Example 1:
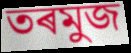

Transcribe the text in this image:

তৰমুজ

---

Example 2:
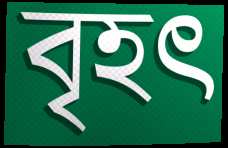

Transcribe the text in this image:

বৃহৎ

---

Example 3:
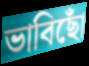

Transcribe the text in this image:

ভাবিছোঁ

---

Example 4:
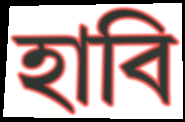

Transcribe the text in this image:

হাবি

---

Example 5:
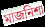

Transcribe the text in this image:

মাজনিশা